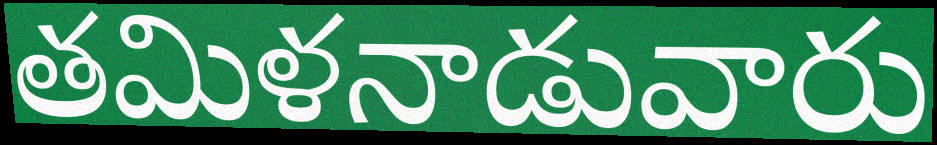
తమిళనాడువారు